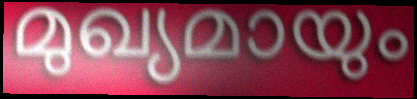
മുഖ്യമായും